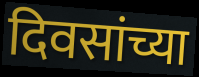
दिवसांच्या